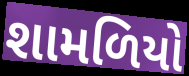
શામળિયો